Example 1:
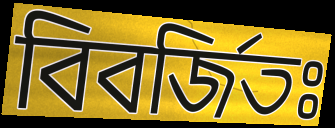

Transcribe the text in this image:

বিবর্জিতঃ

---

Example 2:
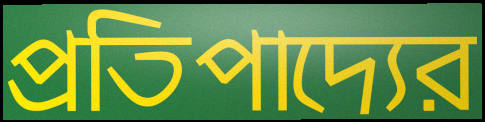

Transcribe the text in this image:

প্রতিপাদ্যের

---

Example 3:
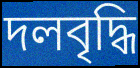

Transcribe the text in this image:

দলবৃদ্ধি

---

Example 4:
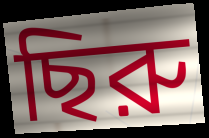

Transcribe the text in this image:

ছিরু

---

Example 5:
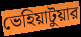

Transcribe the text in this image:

ভেহিয়াটুয়ার